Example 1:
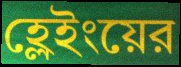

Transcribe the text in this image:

হ্লেইংয়ের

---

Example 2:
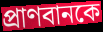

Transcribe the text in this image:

প্রাণবানকে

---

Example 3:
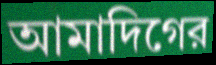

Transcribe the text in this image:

আমাদিগের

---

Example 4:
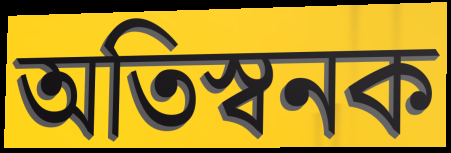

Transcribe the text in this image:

অতিস্বনক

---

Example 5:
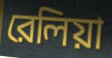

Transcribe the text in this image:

রেলিয়া